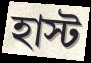
হাস্ট